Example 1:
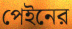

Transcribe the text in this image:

পেইনের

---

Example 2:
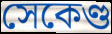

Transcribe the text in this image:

সেকেণ্ড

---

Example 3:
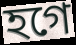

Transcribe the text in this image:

হগে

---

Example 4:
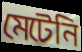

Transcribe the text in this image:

মেটেনি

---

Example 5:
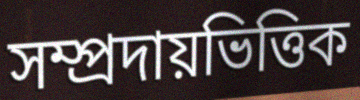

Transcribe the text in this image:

সম্প্রদায়ভিত্তিক